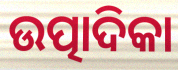
ଉତ୍ପାଦିକା